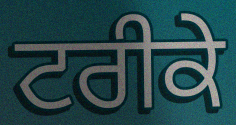
ਟਰੀਕੇ